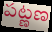
పట్ణణ